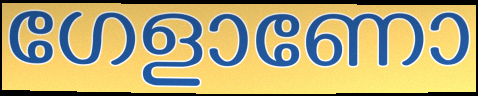
ഗേളാണോ